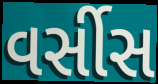
વર્સીસ